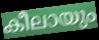
കീലായും